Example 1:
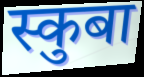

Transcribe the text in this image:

स्कुबा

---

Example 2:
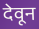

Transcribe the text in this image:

देवून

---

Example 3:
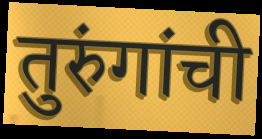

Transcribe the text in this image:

तुरुंगांची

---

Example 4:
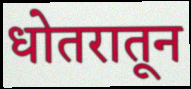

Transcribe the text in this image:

धोतरातून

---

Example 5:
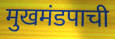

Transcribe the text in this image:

मुखमंडपाची